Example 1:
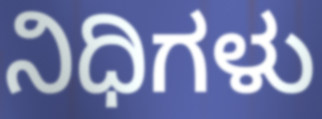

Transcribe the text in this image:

ನಿಧಿಗಳು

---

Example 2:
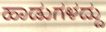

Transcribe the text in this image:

ಹಾಡುಗಳದ್ದು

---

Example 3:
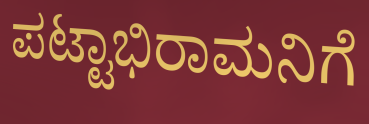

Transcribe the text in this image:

ಪಟ್ಟಾಭಿರಾಮನಿಗೆ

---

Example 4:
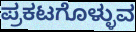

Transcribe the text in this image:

ಪ್ರಕಟಗೊಳ್ಳುವ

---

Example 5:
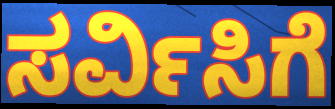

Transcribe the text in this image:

ಸರ್ವಿಸಿಗೆ